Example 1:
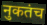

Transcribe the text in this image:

नुकतंच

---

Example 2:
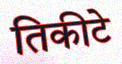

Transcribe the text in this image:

तिकीटे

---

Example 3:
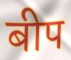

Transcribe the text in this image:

बीप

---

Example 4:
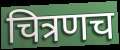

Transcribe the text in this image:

चित्रणच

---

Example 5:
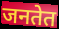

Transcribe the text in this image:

जनतेत